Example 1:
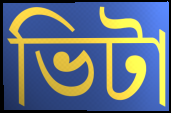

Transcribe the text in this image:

ভিটা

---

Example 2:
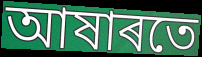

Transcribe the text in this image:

আষাৰতে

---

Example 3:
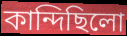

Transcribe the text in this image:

কান্দিছিলো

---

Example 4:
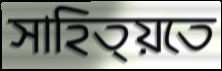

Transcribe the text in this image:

সাহিত্য়তে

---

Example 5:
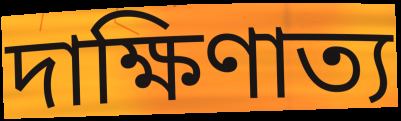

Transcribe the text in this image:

দাক্ষিণাত্য